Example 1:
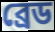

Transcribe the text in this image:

ব্ৰেড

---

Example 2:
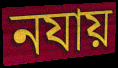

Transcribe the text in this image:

নযায়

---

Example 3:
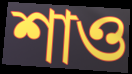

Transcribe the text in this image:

শাও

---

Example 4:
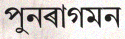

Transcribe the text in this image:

পুনৰাগমন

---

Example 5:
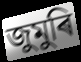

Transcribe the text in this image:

জুমুৰি